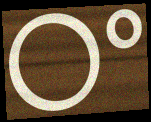
ଠଂ